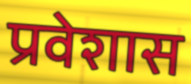
प्रवेशास